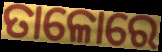
ତାଳୋରେ